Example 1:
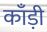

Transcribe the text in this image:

काँड़ी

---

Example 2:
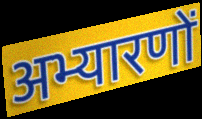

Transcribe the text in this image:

अभ्यारणों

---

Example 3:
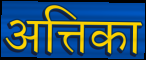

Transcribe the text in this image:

अत्तिका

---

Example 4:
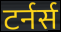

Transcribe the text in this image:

टर्नर्स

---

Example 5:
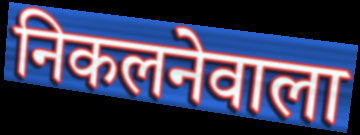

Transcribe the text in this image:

निकलनेवाला